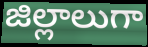
జిల్లాలుగా